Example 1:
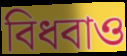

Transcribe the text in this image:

বিধবাও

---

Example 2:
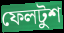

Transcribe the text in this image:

ফেলটুশ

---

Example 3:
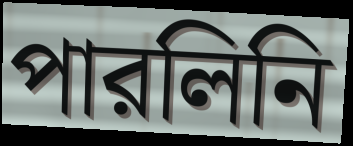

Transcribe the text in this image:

পারলিনি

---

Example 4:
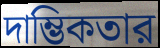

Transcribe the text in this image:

দাম্ভিকতার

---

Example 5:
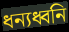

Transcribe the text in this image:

ধন্যধ্বনি